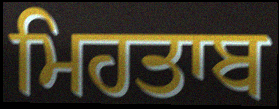
ਮਿਹਤਾਬ